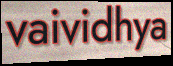
vaividhya